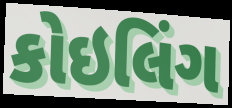
કોઇલિંગ